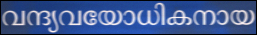
വന്ദ്യവയോധികനായ